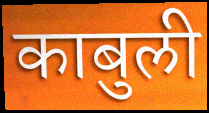
काबुली